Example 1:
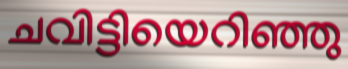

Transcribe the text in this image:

ചവിട്ടിയെറിഞ്ഞു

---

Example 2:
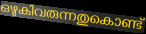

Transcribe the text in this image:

ഒഴുകിവരുന്നതുകൊണ്ട്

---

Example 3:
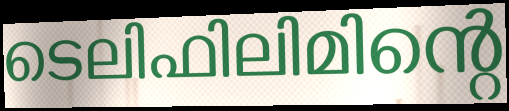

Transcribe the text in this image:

ടെലിഫിലിമിന്റെ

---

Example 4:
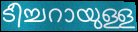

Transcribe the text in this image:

ടീച്ചറായുള്ള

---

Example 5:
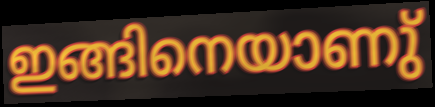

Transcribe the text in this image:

ഇങ്ങിനെയാണു്